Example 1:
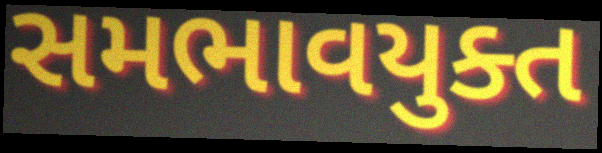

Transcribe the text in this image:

સમભાવયુક્ત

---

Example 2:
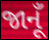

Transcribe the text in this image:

જાનૂઁ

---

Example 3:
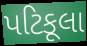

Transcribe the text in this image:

પટિકૂલા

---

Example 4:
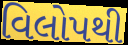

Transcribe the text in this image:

વિલોપથી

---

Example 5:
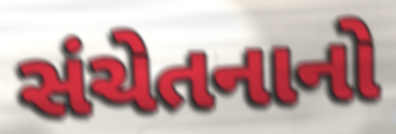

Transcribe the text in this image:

સંચેતનાનો